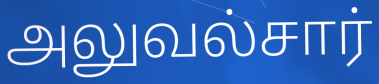
அலுவல்சார்